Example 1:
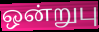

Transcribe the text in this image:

ஒன்றுபு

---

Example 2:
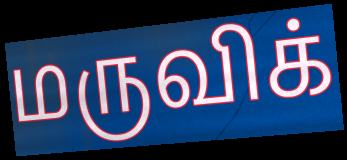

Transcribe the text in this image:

மருவிக்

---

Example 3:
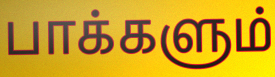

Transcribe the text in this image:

பாக்களும்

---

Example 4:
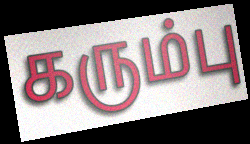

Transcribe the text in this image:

கரும்பு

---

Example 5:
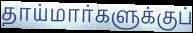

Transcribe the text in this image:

தாய்மார்களுக்குப்